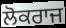
ਲੋਕਰਾਜ